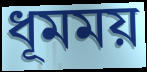
ধূমময়